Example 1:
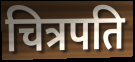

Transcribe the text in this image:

चित्रपति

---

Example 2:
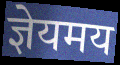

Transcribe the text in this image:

ज्ञेयमय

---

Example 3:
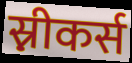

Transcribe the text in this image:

स्नीकर्स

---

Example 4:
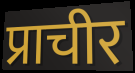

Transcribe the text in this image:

प्राचीर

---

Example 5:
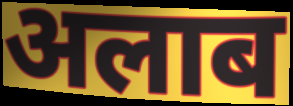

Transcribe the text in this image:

अलाब